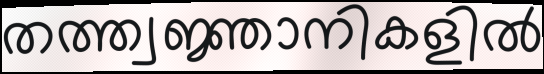
തത്ത്വജ്ഞാനികളിൽ